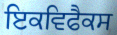
ਇਕਵਿਫੈਕਸ